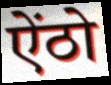
ऐंठो